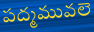
పద్మమువలె